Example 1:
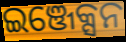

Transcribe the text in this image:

ଇଞ୍ଜେକ୍ସନ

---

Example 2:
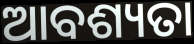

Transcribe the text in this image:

ଆବଶ୍ୟତା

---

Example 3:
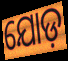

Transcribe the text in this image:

ଯୋଡ଼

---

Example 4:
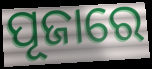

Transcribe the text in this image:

ପୂଜାରେ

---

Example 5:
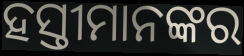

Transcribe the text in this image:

ହସ୍ତୀମାନଙ୍କର